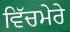
ਵਿੱਚਮੇਰੇ